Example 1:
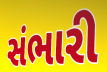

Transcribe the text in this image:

સંભારી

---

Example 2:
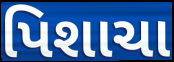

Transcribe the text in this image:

પિશાચા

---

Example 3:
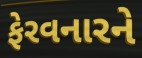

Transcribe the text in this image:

ફેરવનારને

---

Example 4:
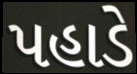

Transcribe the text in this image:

પહાડે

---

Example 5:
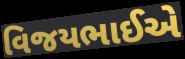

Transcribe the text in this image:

વિજયભાઈએ